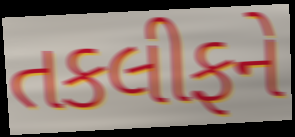
તકલીફને